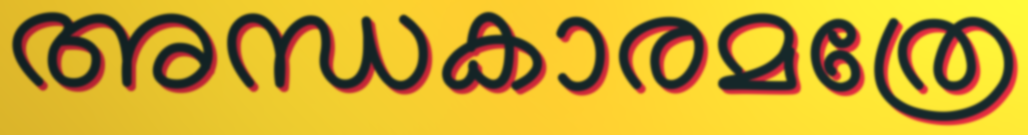
അന്ധകാരമത്രേ